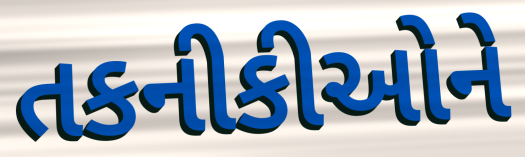
તકનીકીઓને